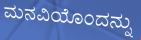
ಮನವಿಯೊಂದನ್ನು